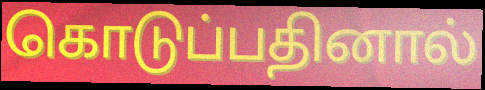
கொடுப்பதினால்